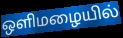
ஒளிமழையில்